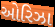
ઓરિઝા